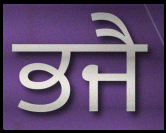
ਭਜੈ